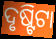
ଦୃଷ୍ଟିଟା